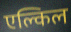
एल्किल